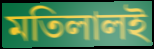
মতিলালই